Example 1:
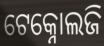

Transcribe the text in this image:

ଟେକ୍ନୋଲଜି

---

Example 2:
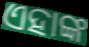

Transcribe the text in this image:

ଏହାଙ୍କ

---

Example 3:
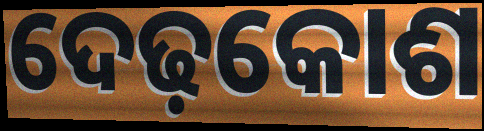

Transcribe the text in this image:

ଦେଢ଼କୋଶ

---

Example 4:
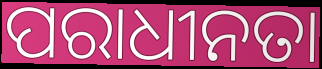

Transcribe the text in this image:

ପରାଧୀନତା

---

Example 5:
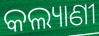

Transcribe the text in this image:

କଲ୍ୟାଣୀ